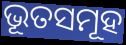
ଭୂତସମୂହ